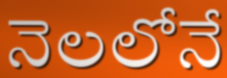
నెలలోనే